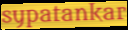
sypatankar